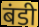
बंडी